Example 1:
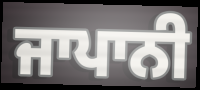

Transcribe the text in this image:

ਜਾਪਾਨੀ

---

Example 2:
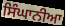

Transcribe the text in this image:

ਸਿੰਘਾਨੀਆ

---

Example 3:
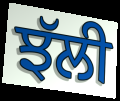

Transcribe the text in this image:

ਝੱਲੀ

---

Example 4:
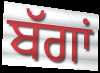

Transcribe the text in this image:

ਬੱਗਾਂ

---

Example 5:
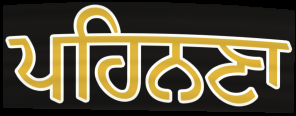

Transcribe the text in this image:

ਪਹਿਨਣਾ